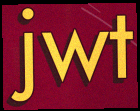
jwt